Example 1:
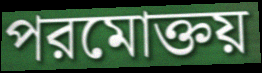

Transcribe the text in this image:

পরমোক্তয়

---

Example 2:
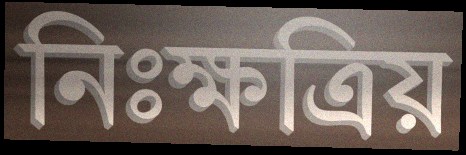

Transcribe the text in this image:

নিঃক্ষত্রিয়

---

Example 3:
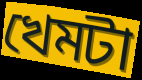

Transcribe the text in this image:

খেমটা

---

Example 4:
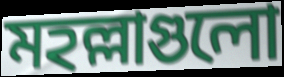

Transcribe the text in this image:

মহল্লাগুলো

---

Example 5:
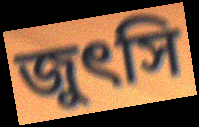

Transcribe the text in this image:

জুৎসি